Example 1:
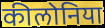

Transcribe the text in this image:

कीलोनिया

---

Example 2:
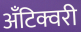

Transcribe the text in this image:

अँटिक्वरी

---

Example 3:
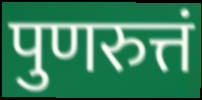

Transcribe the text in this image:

पुणरुत्तं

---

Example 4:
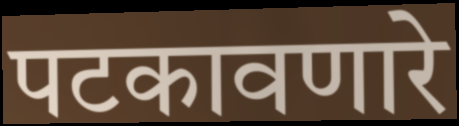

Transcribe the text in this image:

पटकावणारे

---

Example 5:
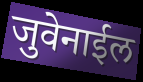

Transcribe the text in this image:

जुवेनाईल